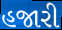
હજારી